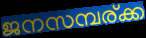
ജനസമ്പര്ക്ക